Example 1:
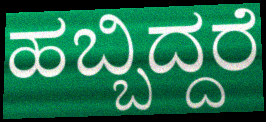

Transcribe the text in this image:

ಹಬ್ಬಿದ್ದರೆ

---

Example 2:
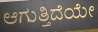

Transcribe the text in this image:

ಆಗುತ್ತಿದೆಯೇ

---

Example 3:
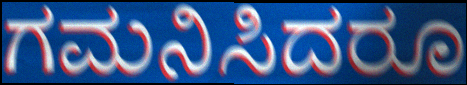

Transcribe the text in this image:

ಗಮನಿಸಿದರೂ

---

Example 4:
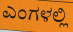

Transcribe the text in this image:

ಎಂಗಳಲ್ಲಿ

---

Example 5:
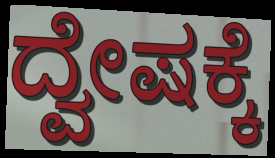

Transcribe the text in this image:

ದ್ವೇಷಕ್ಕೆ